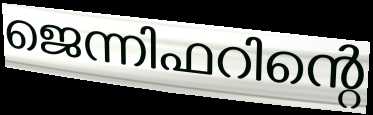
ജെന്നിഫറിന്റെ